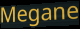
Megane